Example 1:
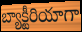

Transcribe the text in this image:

బ్యాక్టీరియాగా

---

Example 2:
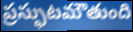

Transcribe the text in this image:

ప్రస్ఫుటమౌతుంది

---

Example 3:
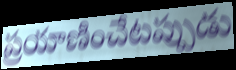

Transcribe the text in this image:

ప్రయాణించేటప్పుడు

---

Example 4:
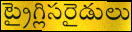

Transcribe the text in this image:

ట్రైగ్లిసరైడులు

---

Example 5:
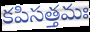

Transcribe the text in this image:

కపిసత్తమః